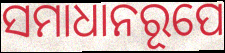
ସମାଧାନରୂପେ